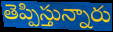
తెప్పిస్తున్నారు